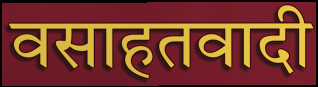
वसाहतवादी